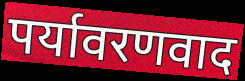
पर्यावरणवाद